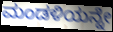
ಮಂಡಳಿಯನ್ನೇ